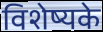
विशेष्यके